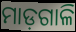
ମାଡ଼ଗାଳି